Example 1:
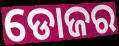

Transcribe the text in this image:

ଡୋଜର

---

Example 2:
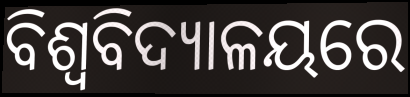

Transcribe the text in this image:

ବିଶ୍ବବିଦ୍ୟାଳୟରେ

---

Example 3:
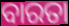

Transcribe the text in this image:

ବାରତା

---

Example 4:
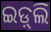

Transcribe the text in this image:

ଇଡ଼୍‌ଲି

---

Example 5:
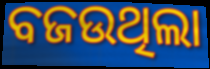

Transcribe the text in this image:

ବଜଉଥିଲା